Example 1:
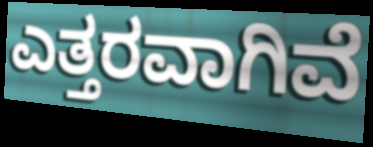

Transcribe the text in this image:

ಎತ್ತರವಾಗಿವೆ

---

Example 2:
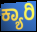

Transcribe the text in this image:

ಕ್ಯಾರಿ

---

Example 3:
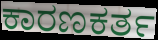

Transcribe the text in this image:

ಕಾರಣಕರ್ತ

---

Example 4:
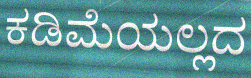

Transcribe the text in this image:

ಕಡಿಮೆಯಲ್ಲದ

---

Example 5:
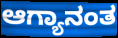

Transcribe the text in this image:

ಆಗ್ಯಾನಂತ